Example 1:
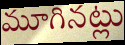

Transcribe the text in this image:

మూగినట్లు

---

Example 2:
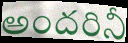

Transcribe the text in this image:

అందరినీ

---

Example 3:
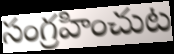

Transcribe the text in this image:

సంగ్రహించుట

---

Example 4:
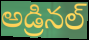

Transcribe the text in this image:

అడ్రినల్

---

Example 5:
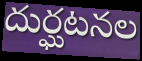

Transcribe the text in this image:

దుర్ఘటనల